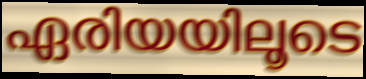
ഏരിയയിലൂടെ